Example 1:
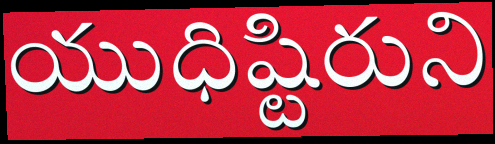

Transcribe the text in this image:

యుధిష్టిరుని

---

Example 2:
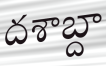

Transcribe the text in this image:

దశాబ్దా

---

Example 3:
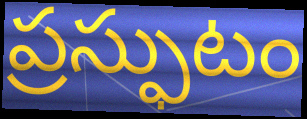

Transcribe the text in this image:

ప్రస్ఫుటం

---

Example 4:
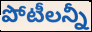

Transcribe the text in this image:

పోటీలన్నీ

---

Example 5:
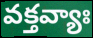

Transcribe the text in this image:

వక్తవ్యాః